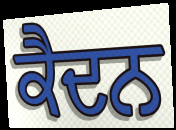
ਕੈਦਨ